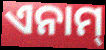
ଏନାମ୍